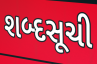
શબ્દસૂચી